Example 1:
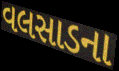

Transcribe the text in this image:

વલસાડના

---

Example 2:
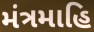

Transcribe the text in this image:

મંત્રમાહિ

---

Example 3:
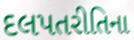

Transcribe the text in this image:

દલપતરીતિના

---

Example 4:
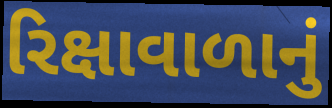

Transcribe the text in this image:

રિક્ષાવાળાનું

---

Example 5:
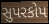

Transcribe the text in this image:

સુપરકોપ